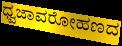
ಧ್ವಜಾವರೋಹಣದ